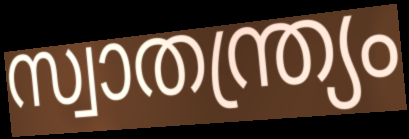
സ്വാതന്ത്ര്യം